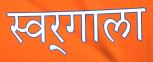
स्वर्गाला